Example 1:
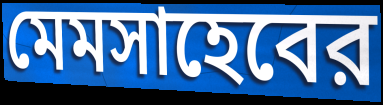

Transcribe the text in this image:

মেমসাহেবের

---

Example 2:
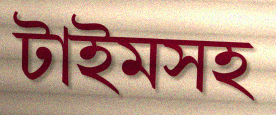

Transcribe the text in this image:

টাইমসহ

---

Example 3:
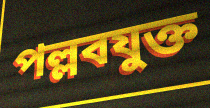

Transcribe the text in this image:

পল্লবযুক্ত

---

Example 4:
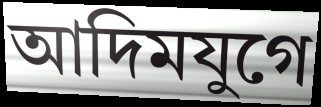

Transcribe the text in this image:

আদিমযুগে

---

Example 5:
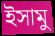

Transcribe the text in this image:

ইসামু